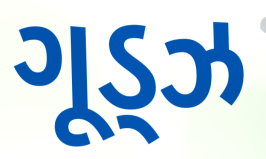
ગૂડ્ઝ